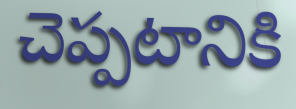
చెప్పటానికి